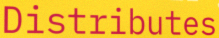
Distributes